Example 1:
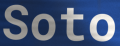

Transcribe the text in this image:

Soto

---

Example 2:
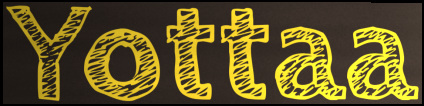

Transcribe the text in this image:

Yottaa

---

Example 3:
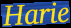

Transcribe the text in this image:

Harie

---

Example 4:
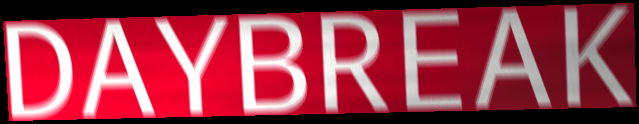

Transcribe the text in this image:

DAYBREAK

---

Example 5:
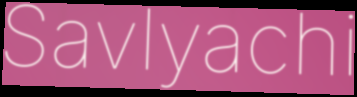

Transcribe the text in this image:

Savlyachi